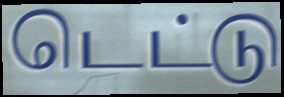
டெட்டு